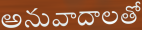
అనువాదాలతో